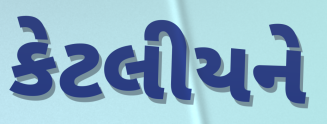
કેટલીયને